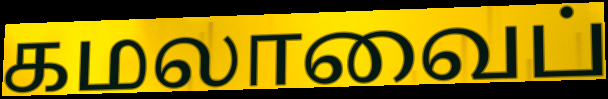
கமலாவைப்